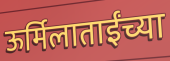
ऊर्मिलाताईंच्या